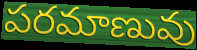
పరమాణువు